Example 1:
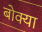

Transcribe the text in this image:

बोक्या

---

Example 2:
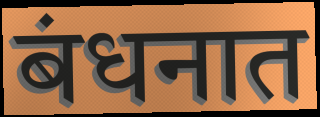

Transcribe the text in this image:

बंधनात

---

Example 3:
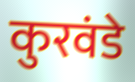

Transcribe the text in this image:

कुरवंडे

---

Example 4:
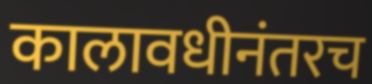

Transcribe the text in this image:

कालावधीनंतरच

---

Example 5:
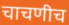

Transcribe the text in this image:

चाचणीच